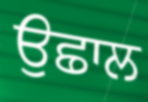
ਉਛਾਲ